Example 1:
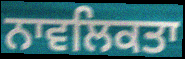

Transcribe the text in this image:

ਨਾਵਲਿਕਤਾ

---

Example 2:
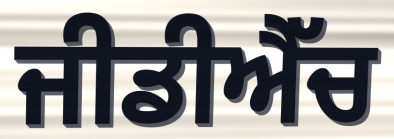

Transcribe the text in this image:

ਜੀਡੀਐੱਚ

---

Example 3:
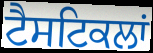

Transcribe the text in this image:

ਟੈਸਟਿਕਲਾਂ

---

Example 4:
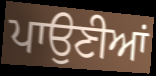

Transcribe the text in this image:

ਪਾਉਣੀਆਂ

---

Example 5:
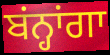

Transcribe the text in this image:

ਬਂਨ੍ਹਾਂਗਾ